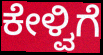
ಕೇಳ್ವಿಗೆ